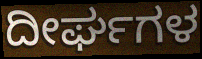
ದೀರ್ಘಗಳ